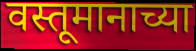
वस्तूमानाच्या